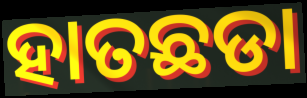
ହାତଛଡା